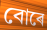
বোৰে